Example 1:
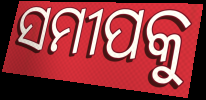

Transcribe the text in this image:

ସମୀପକୁ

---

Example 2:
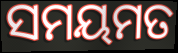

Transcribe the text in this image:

ସମୟମତ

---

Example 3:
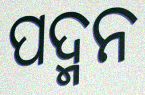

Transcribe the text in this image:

ପଦ୍ମନ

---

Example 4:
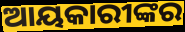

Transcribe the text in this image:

ଆୟକାରୀଙ୍କର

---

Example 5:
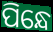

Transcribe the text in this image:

ପିନ୍ଧେ